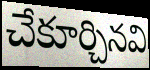
చేకూర్చినవి